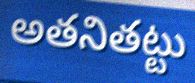
అతనితట్టు